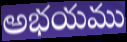
అభయము